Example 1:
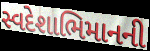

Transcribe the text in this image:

સ્વદેશાભિમાનની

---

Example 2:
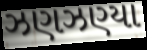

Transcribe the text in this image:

ઝણઝણ્યા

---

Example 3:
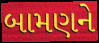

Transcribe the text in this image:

બામણને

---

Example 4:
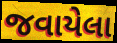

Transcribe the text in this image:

જવાયેલા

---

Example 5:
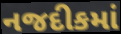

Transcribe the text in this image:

નજદીકમાં